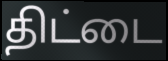
திட்டை